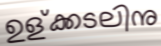
ഉള്ക്കടലിനു